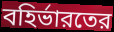
বহির্ভারতের